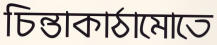
চিন্তাকাঠামোতে